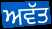
ਅਵੱਤ